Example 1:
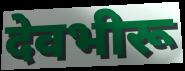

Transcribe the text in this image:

देवभीरू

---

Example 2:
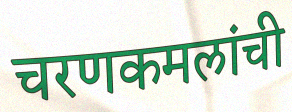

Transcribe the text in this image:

चरणकमलांची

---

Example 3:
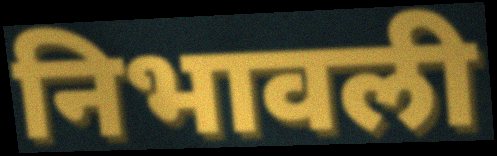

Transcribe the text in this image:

निभावली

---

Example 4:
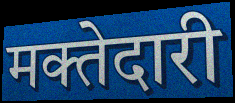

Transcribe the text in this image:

मक्तेदारी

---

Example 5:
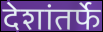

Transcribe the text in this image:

देशांतर्फे